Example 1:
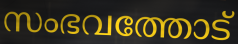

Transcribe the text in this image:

സംഭവത്തോട്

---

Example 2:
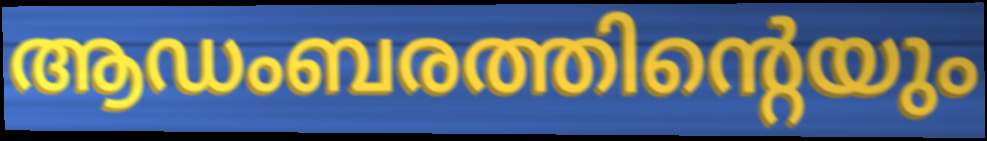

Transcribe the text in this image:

ആഡംബരത്തിന്റെയും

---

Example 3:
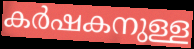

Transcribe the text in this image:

കർഷകനുള്ള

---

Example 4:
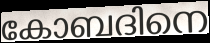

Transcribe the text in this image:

കോബദിനെ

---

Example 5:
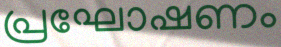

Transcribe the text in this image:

പ്രഘോഷണം